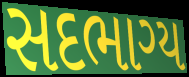
સદભાગ્ય